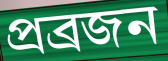
প্ৰব্ৰজন